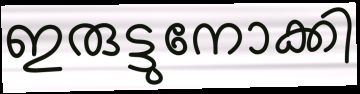
ഇരുട്ടുനോക്കി